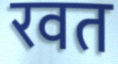
रवत